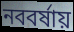
নববর্ষায়